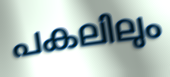
പകലിലും